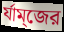
র্যাম্জের